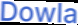
Dowla